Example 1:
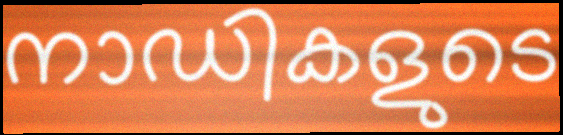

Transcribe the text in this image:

നാഡികളുടെ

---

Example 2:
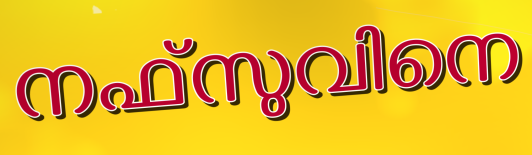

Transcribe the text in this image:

നഫ്സുവിനെ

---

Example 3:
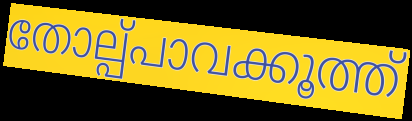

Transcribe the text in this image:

തോല്പ്പാവക്കൂത്ത്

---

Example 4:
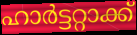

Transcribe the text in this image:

ഹാർട്ടറ്റാക്ക്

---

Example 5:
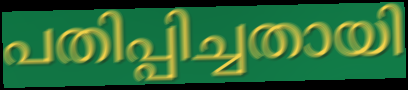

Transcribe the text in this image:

പതിപ്പിച്ചതായി